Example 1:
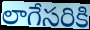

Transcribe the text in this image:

లాగేసరికి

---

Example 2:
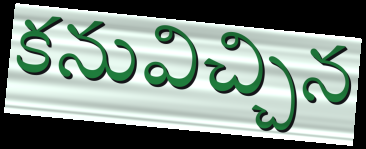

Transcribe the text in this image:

కనువిచ్చిన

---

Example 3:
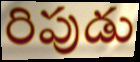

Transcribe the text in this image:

రిపుడు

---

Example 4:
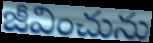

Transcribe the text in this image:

జీవించును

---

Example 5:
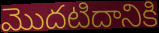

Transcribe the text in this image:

మొదటిదానికి